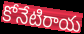
కోనేటిరాయ